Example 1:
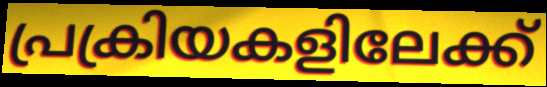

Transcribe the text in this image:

പ്രക്രിയകളിലേക്ക്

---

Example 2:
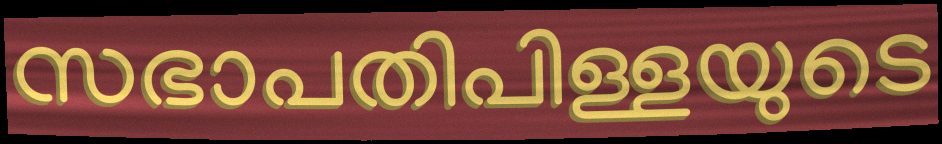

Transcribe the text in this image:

സഭാപതിപിള്ളയുടെ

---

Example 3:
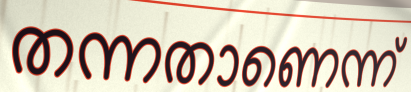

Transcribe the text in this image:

തന്നതാണെന്ന്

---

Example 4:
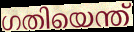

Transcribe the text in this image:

ഗതിയെന്ത്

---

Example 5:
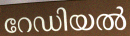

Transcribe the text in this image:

റേഡിയൽ